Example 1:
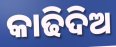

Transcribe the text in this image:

କାଢିଦିଅ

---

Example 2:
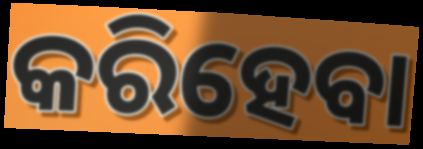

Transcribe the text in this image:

କରିହେବା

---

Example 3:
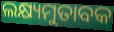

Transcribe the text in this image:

ଲକ୍ଷ୍ୟମୁତାବକ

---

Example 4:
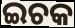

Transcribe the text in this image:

ଇଚକ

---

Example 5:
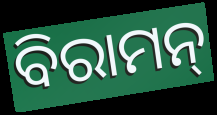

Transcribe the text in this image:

ବିରାମନ୍